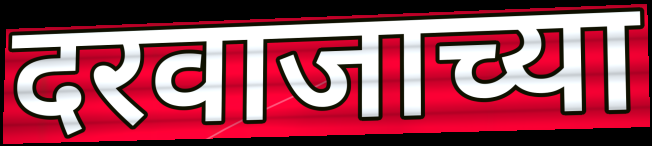
दरवाजाच्या